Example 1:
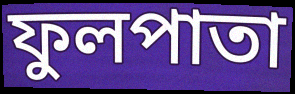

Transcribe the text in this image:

ফুলপাতা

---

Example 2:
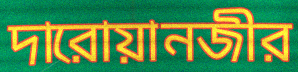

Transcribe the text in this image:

দারোয়ানজীর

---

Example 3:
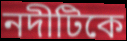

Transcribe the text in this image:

নদীটিকে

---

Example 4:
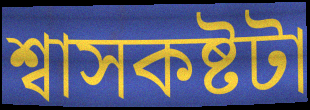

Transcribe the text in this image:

শ্বাসকষ্টটা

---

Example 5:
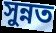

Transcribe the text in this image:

সুন্নত